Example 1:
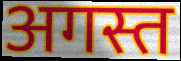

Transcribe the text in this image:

अगस्त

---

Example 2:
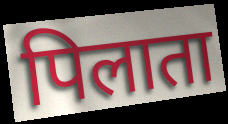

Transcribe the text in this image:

पिलाता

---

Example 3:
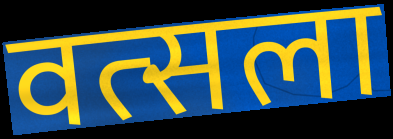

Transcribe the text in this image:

वत्‍सला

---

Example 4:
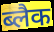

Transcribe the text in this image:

ब्लैक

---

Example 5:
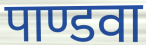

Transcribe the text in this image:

पाण्डवा